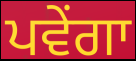
ਪਵੇਂਗਾ